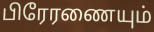
பிரேரணையும்